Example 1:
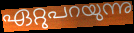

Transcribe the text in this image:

ഏറ്റുപറയുന്നു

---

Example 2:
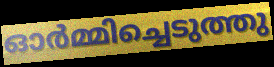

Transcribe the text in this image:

ഓർമ്മിച്ചെടുത്തു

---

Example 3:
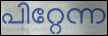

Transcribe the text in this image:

പിറ്റേന്ന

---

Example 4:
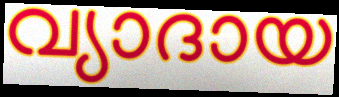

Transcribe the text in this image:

വ്യാദായ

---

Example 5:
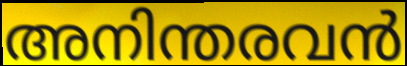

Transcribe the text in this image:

അനിന്തരവൻ